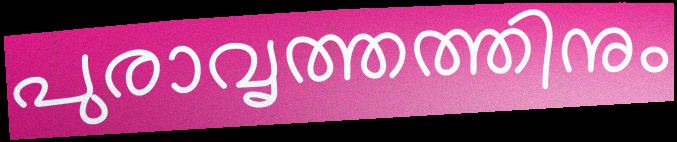
പുരാവൃത്തത്തിനും